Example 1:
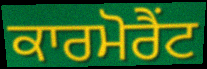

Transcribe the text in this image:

ਕਾਰਮੋਰੈਂਟ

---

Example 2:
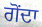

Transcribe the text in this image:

ਗੋਂਦਾ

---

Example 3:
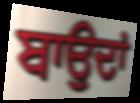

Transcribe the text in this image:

ਬਾਉਦਾਂ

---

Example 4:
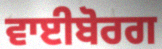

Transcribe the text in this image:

ਵਾਈਬੋਰਗ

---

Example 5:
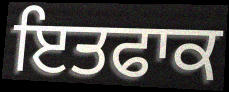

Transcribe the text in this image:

ਇਤਫਾਕ